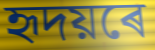
হৃদয়ৰে